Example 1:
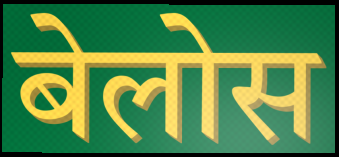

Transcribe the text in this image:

बेलोस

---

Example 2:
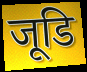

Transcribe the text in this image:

जूडि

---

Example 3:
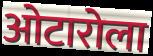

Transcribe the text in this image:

ओटारोला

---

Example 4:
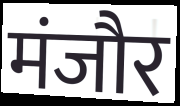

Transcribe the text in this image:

मंजौर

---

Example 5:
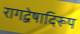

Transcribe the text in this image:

रागद्वेषादिरूप